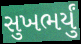
સુખભર્યું